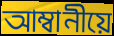
আম্বানীয়ে